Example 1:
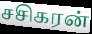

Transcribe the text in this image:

சசிகரன்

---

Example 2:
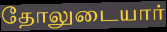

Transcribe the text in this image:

தோலுடையார்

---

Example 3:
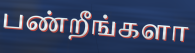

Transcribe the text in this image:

பண்றீங்களா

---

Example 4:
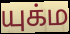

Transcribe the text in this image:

யுக்ம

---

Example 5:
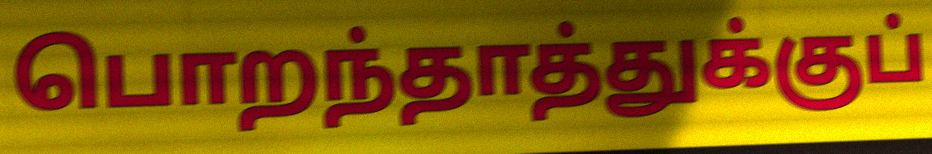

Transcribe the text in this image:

பொறந்தாத்துக்குப்